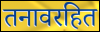
तनावरहित